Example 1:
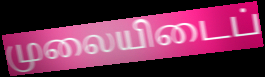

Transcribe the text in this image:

முலையிடைப்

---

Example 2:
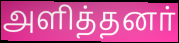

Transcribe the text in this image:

அளித்தனர்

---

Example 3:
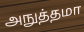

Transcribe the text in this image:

அநுத்தமா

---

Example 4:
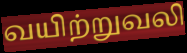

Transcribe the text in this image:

வயிற்றுவலி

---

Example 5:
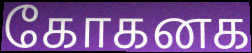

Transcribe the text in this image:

கோகனக